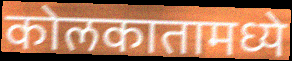
कोलकातामध्ये